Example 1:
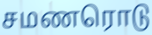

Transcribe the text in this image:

சமணரொடு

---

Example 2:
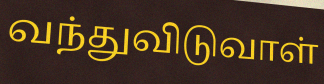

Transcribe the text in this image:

வந்துவிடுவாள்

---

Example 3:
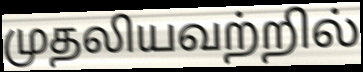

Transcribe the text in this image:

முதலியவற்றில்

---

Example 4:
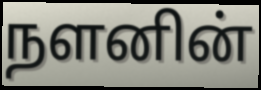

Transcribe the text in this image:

நளனின்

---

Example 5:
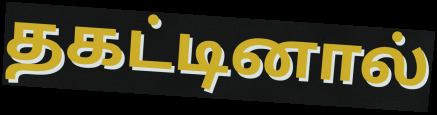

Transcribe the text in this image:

தகட்டினால்